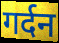
गर्दन